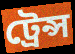
ট্রেন্স